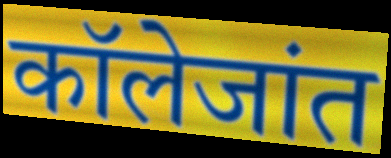
कॉलेजांत